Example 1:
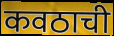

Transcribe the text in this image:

कवठाची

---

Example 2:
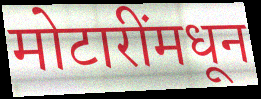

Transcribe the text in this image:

मोटारींमधून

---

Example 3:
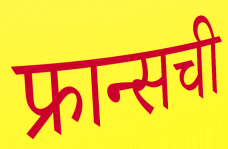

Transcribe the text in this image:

फ्रान्सची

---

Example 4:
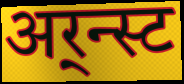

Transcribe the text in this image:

अर्न्स्ट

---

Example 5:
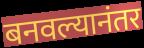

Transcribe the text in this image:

बनवल्यानंतर